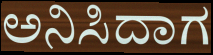
ಅನಿಸಿದಾಗ